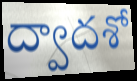
ద్వాదశో